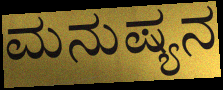
ಮನುಷ್ಯನ